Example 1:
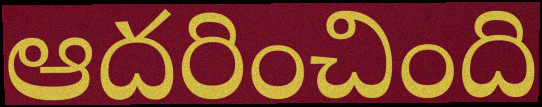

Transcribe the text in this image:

ఆదరించింది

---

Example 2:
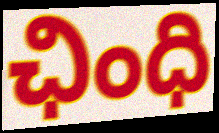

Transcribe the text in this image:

ఛింధి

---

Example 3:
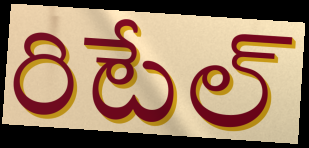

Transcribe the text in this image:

రిటేల్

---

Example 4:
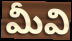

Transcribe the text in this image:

మీవి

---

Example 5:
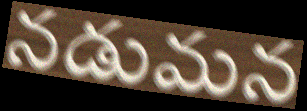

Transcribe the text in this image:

నడుమన